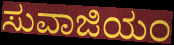
ಸುವಾಜಿಯಂ